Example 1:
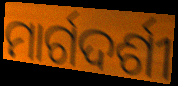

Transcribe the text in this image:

ମାର୍ଗଦର୍ଶୀ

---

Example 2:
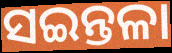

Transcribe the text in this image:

ସଇନ୍ତଳା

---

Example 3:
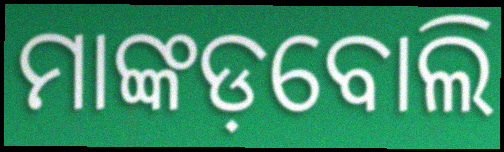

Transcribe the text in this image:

ମାଙ୍କଡ଼ବୋଲି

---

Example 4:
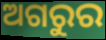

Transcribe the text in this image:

ଅଗରୁର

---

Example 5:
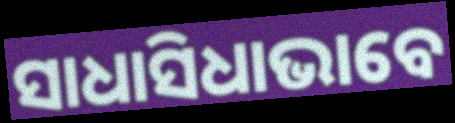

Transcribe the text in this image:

ସାଧାସିଧାଭାବେ